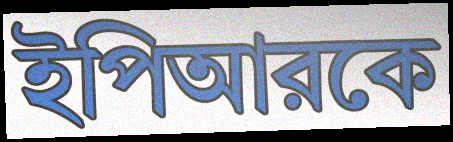
ইপিআরকে